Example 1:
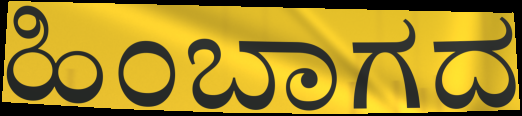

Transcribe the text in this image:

ಹಿಂಬಾಗದ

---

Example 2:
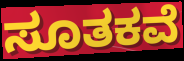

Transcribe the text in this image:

ಸೂತಕವೆ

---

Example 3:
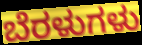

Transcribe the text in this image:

ಬೆರಳುಗಳು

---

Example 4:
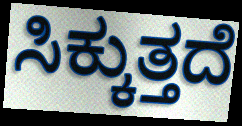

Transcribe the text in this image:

ಸಿಕ್ಕುತ್ತದೆ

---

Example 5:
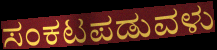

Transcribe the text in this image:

ಸಂಕಟಪಡುವಳು